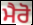
ਮੈਰੋ